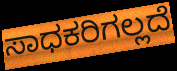
ಸಾಧಕರಿಗಲ್ಲದೆ